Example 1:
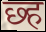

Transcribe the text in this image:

छ्ह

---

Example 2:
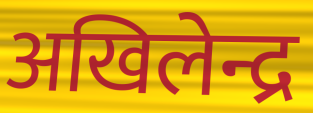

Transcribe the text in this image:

अखिलेन्द्र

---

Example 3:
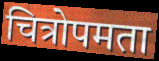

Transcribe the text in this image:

चित्रोपमता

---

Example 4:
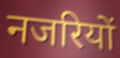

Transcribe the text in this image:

नजरियों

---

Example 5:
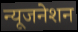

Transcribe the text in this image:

न्यूजनेशन